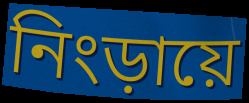
নিংড়ায়ে